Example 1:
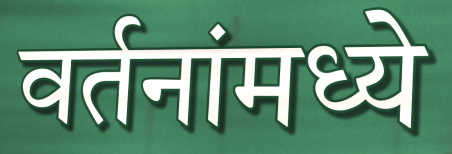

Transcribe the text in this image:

वर्तनांमध्ये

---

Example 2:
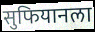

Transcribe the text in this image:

सुफियानला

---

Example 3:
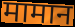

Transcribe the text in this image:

मामान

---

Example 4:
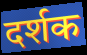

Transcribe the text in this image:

दर्शक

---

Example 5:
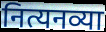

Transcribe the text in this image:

नित्यनव्या